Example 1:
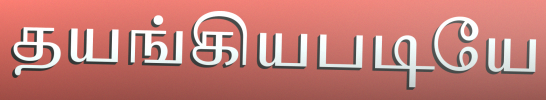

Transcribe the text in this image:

தயங்கியபடியே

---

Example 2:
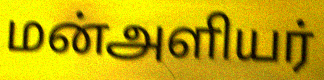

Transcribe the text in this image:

மன்அளியர்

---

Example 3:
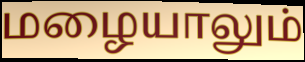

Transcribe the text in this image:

மழையாலும்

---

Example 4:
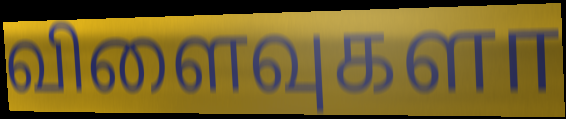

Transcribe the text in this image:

விளைவுகளா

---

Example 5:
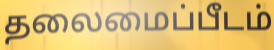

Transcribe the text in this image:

தலைமைப்பீடம்